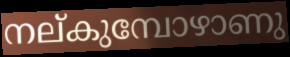
നല്കുമ്പോഴാണു